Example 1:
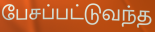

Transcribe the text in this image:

பேசப்பட்டுவந்த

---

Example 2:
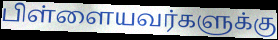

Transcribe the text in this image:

பிள்ளையவர்களுக்கு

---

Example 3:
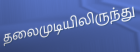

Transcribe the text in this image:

தலைமுடியிலிருந்து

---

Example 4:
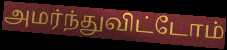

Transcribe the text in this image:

அமர்ந்துவிட்டோம்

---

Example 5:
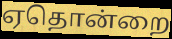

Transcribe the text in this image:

ஏதொன்றை